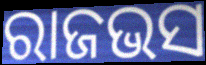
ରାଜଭସ